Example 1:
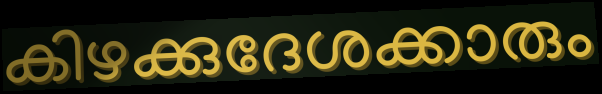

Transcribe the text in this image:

കിഴക്കുദേശക്കാരും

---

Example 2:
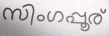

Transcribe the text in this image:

സിംഗപ്പൂര്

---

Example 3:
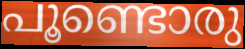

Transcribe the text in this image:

പൂണ്ടൊരു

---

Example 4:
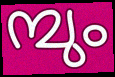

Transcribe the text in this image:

മ്പും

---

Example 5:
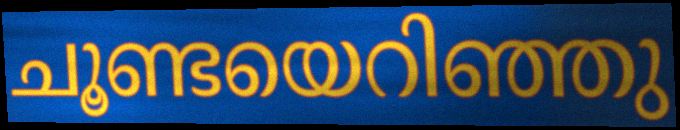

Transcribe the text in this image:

ചൂണ്ടയെറിഞ്ഞു